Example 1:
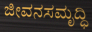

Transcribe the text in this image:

ಜೀವನಸಮೃದ್ಧಿ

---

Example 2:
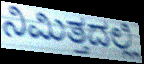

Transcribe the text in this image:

ನಿಮಿತ್ತದಲ್ಲಿ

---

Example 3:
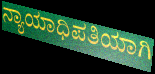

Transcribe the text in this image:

ನ್ಯಾಯಾಧಿಪತಿಯಾಗಿ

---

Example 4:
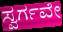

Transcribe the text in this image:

ಸ್ವರ್ಗವೇ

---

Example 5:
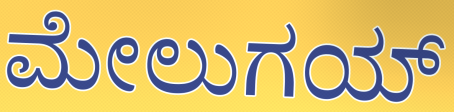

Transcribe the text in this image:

ಮೇಲುಗಯ್